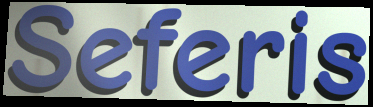
Seferis